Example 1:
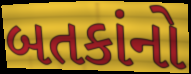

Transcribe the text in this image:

બતકાંનો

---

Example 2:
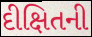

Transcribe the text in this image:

દીક્ષિતની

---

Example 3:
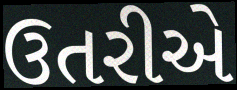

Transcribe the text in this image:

ઉતરીએ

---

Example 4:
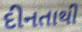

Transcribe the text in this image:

દીનતાથી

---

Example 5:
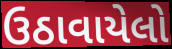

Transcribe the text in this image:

ઉઠાવાયેલો